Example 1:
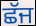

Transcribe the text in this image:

ਛੱਜ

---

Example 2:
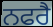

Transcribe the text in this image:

ਨਫਰੈ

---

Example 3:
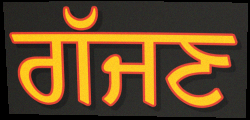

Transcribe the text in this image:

ਗੱਜਣ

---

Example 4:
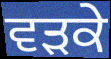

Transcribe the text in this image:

ਵੜਕੇ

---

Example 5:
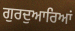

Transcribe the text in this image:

ਗੁਰਦੁਆਰਿਆਂ